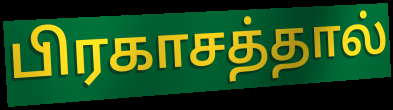
பிரகாசத்தால்